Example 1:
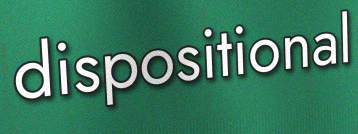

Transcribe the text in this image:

dispositional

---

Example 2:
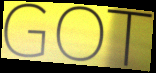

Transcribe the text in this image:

GOT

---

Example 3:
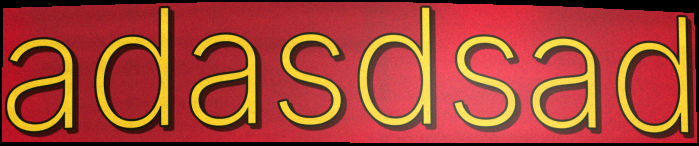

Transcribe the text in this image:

adasdsad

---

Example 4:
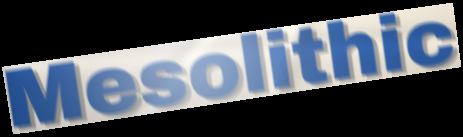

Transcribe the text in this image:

Mesolithic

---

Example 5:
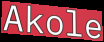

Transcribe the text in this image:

Akole